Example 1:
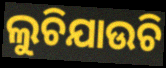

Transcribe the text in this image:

ଲୁଚିଯାଉଚି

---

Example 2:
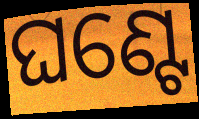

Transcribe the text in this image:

ଘଣ୍ଟେ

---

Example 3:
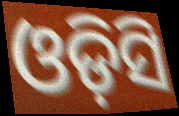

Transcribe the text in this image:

ଓଡ଼ିସି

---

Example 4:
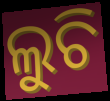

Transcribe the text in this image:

ଲୁଚି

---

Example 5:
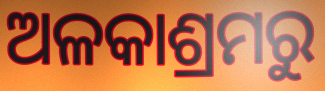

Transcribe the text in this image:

ଅଳକାଶ୍ରମରୁ